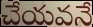
చేయవనే